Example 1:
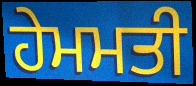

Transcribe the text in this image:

ਹੇਮਮਤੀ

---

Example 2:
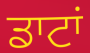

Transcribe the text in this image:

ਡਾਟਾਂ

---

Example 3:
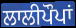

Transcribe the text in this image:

ਲਾਲੀਪੌਪਾਂ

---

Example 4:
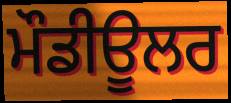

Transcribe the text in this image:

ਮੌਡੀਊਲਰ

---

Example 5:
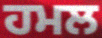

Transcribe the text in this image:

ਹਮਲ